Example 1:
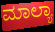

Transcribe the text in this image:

ಮಾಲ್ಯಾ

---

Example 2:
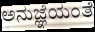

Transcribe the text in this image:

ಅನುಜ್ಞೆಯಂತೆ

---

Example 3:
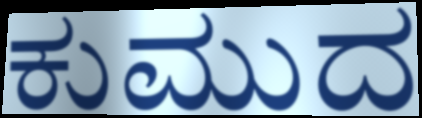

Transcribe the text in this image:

ಕುಮುದ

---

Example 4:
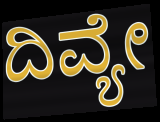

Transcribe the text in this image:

ದಿವ್ಯೇ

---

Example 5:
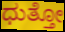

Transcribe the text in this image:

ಧುತ್ತೋ